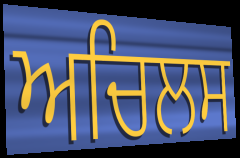
ਅਚਿਲਸ